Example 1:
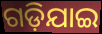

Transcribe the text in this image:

ଗଡ଼ିଯାଇ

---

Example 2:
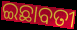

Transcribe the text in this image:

ଇଛାବତୀ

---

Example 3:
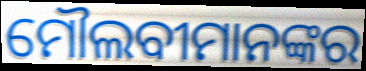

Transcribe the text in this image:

ମୌଲବୀମାନଙ୍କର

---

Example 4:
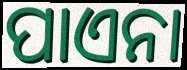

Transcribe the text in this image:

ପାଏନା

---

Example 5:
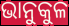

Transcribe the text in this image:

ଭାନୁକୁଳ